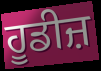
ਹੂਡੀਜ਼